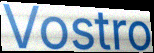
Vostro